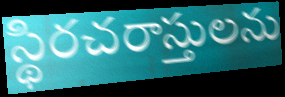
స్థిరచరాస్తులను